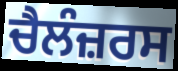
ਚੈਲੰਜ਼ਰਸ